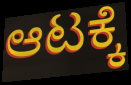
ಆಟಕ್ಕೆ